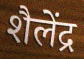
शैलेंद्र